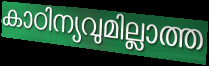
കാഠിന്യവുമില്ലാത്ത